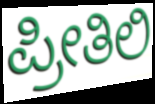
ಪ್ರೀತಿಲಿ